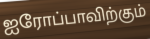
ஐரோப்பாவிற்கும்